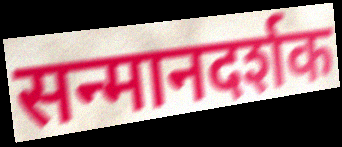
सन्मानदर्शक